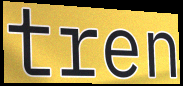
tren